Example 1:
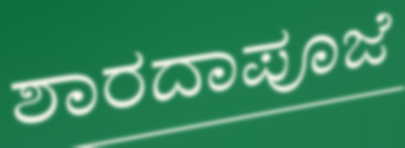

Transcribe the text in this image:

ಶಾರದಾಪೂಜೆ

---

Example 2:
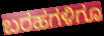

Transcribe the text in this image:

ಬರಹಗಳಿಗೂ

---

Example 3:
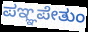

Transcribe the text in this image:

ಪಞ್ಞಪೇತುಂ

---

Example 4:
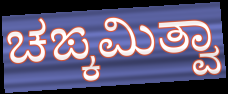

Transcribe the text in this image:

ಚಙ್ಕಮಿತ್ವಾ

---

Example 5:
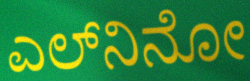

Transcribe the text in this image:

ಎಲ್‍ನಿನೋ